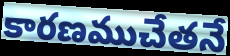
కారణముచేతనే